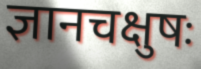
ज्ञानचक्षुषः